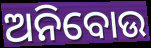
ଅନିବୋଉ